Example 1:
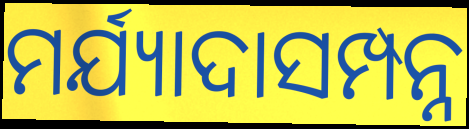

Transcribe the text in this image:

ମର୍ଯ୍ୟାଦାସମ୍ପନ୍ନ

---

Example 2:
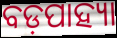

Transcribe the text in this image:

ବଡ଼ପାହ୍ୟା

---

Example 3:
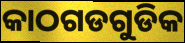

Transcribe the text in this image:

କାଠଗଡଗୁଡିକ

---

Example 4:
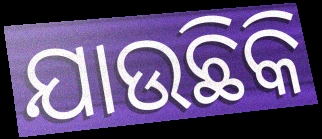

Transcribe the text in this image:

ଯାଉଛିକି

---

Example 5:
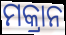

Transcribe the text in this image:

ମକ୍ରାନ